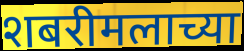
शबरीमलाच्या